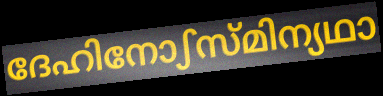
ദേഹിനോഽസ്മിന്യഥാ